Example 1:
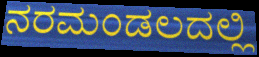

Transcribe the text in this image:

ನರಮಂಡಲದಲ್ಲಿ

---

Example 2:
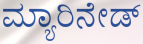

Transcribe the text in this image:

ಮ್ಯಾರಿನೇಡ್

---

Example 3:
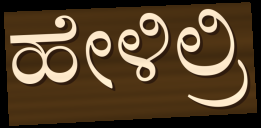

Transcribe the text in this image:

ಹೇಳಿಲ್ರಿ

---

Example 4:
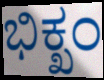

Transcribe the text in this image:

ಭಿಕ್ಖಂ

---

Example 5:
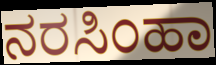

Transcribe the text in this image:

ನರಸಿಂಹಾ